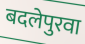
बदलेपुरवा